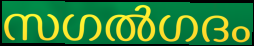
സഗൽഗദം